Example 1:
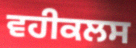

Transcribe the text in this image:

ਵਹੀਕਲਸ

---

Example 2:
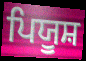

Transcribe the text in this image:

ਪਿਯੂਸ਼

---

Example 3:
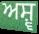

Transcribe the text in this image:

ਅਸ਼੍ਵ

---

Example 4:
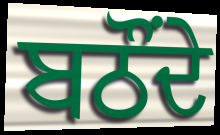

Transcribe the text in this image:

ਬਠੌਂਦੇ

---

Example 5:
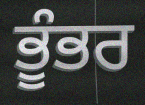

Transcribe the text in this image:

ਭੂੰਭਰ